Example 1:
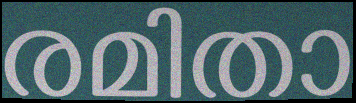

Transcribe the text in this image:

രമിതാ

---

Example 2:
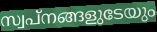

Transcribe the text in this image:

സ്വപ്നങ്ങളുടേയും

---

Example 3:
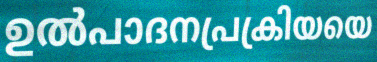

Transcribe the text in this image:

ഉൽപാദനപ്രക്രിയയെ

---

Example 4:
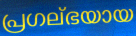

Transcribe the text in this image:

പ്രഗല്ഭയായ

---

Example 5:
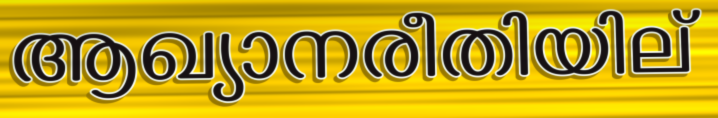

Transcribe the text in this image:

ആഖ്യാനരീതിയില്